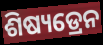
ଶିଷ୍ୟଡ୍ରେନ